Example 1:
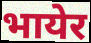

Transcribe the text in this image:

भायेर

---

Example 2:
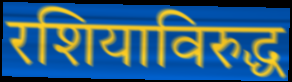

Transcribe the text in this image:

रशियाविरुद्ध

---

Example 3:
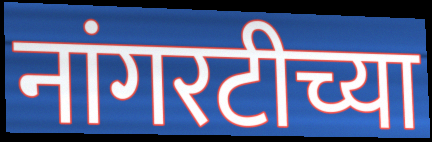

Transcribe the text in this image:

नांगरटीच्या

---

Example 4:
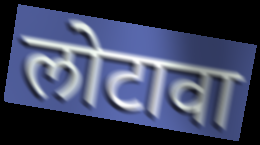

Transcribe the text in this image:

लोटावा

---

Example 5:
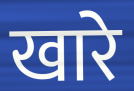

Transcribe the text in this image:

खारे